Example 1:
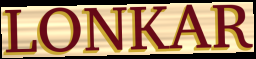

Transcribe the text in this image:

LONKAR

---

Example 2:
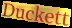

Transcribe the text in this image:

Duckett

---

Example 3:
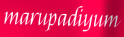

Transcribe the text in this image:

marupadiyum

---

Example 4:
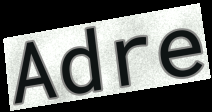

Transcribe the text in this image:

Adre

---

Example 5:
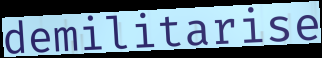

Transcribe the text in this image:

demilitarise